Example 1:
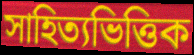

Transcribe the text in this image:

সাহিত্যভিত্তিক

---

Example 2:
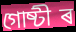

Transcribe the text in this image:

গোষ্টীৰ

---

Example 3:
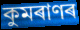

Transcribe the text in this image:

কুমৰাণৰ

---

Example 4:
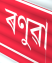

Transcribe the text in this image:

ৰণুৱা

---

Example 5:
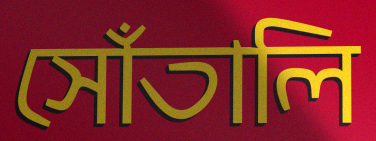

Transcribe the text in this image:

সোঁতালি